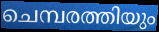
ചെമ്പരത്തിയും